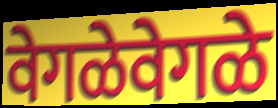
वेगळेवेगळे